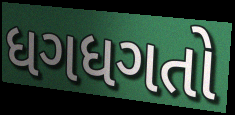
ધગધગતો